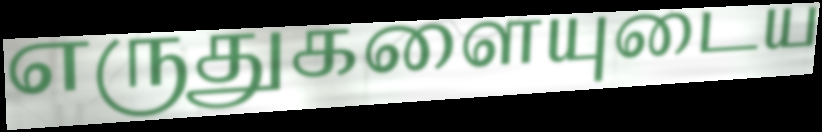
எருதுகளையுடைய